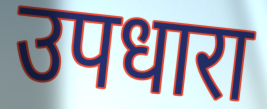
उपधारा